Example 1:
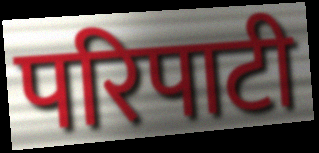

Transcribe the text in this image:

परिपाटी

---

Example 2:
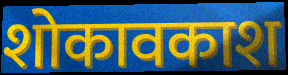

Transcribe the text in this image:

शोकावकाश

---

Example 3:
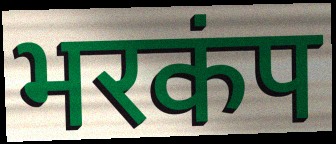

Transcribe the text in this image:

भरकंप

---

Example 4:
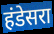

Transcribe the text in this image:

हंडेसरा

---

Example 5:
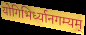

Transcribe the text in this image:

योगिभिर्ध्यानगम्यम्